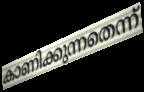
കാണിക്കുന്നതെന്ന്